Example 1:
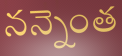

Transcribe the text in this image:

నన్నెంత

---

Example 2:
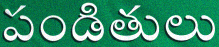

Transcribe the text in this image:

పండితులు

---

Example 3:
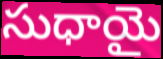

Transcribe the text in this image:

సుధాయై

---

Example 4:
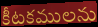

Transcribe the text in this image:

కీటకములను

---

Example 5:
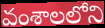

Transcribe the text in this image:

వంశాలలోని